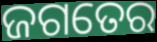
ଜଗତେର